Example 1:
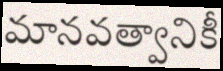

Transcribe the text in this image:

మానవత్వానికీ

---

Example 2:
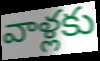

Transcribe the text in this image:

వాళ్లకు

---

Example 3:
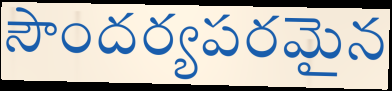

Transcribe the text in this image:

సౌందర్యపరమైన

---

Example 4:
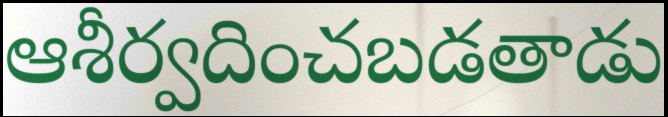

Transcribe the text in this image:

ఆశీర్వదించబడతాడు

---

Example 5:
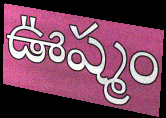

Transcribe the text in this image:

ఊష్మం